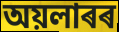
অয়লাৰৰ